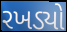
રખડ્યો